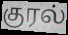
குரல்